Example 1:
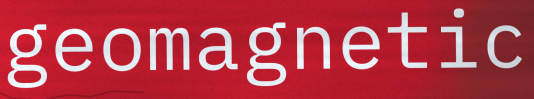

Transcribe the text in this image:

geomagnetic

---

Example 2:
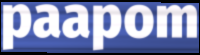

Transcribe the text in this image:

paapom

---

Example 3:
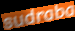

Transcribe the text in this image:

sudraba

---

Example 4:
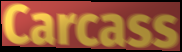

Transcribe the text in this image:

Carcass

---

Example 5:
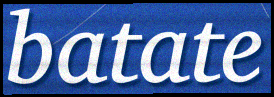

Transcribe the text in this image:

batate